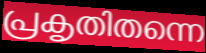
പ്രകൃതിതന്നെ